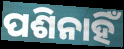
ପଶିନାହିଁ